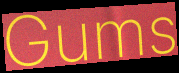
Gums